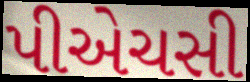
પીએચસી